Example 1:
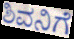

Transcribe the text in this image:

ಶಿವನಿಗೆ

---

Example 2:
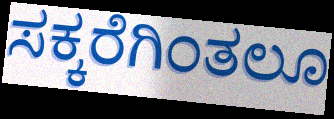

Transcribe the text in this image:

ಸಕ್ಕರೆಗಿಂತಲೂ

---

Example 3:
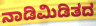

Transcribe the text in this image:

ನಾಡಿಮಿಡಿತದ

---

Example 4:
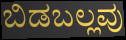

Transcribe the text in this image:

ಬಿಡಬಲ್ಲವು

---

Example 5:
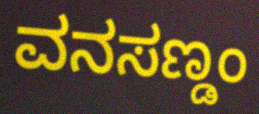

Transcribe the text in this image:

ವನಸಣ್ಡಂ